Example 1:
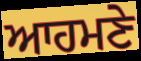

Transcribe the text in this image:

ਆਹਮਣੇ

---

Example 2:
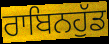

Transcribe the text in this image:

ਰਾਬਿਨਹੁੱਡ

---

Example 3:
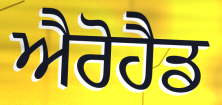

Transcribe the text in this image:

ਐਰੋਹੈਡ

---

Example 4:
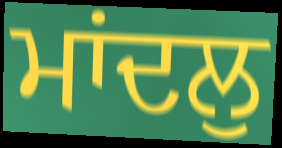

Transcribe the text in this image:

ਮਾਂਦਲੁ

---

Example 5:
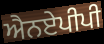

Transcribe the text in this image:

ਐਨਏਪੀਪੀ